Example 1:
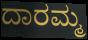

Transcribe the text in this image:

ದಾರಮ್ಮ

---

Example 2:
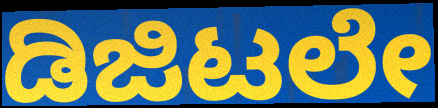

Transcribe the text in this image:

ಡಿಜಿಟಲೇ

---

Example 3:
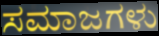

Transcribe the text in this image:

ಸಮಾಜಗಳು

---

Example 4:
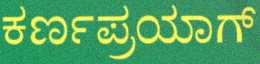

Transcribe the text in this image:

ಕರ್ಣಪ್ರಯಾಗ್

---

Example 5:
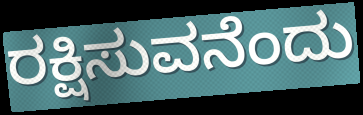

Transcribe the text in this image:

ರಕ್ಷಿಸುವನೆಂದು